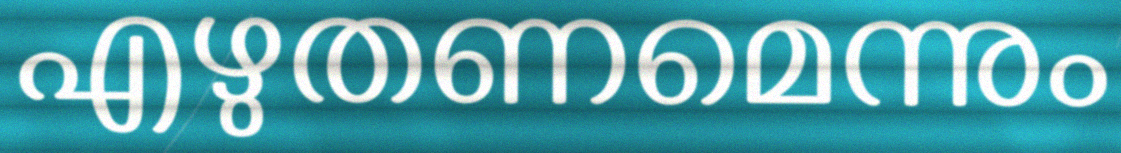
എഴുതണമെന്നും